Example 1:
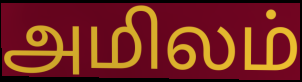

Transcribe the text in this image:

அமிலம்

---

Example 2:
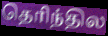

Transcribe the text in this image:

தெரிந்தில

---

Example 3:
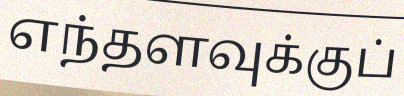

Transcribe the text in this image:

எந்தளவுக்குப்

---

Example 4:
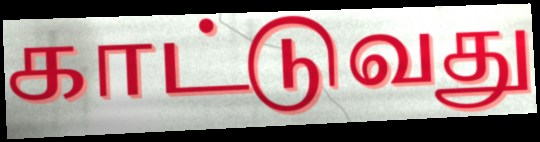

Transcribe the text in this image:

காட்டுவது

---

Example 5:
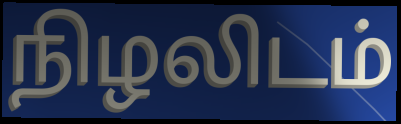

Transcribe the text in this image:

நிழலிடம்